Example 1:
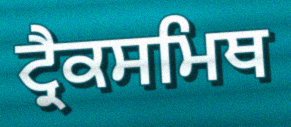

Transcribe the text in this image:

ਟ੍ਰੈਕਸਮਿਥ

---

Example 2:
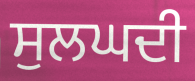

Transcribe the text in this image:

ਸੁਲਘਦੀ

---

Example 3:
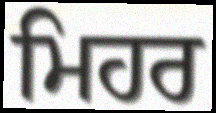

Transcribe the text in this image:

ਮਿਹਰ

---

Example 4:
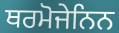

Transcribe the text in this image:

ਥਰਮੋਜੇਨਿਨ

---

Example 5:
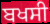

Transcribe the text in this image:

ਬਖਸੀ